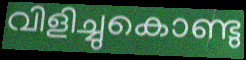
വിളിച്ചുകൊണ്ടു